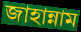
জাহান্নাম